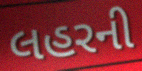
લહરની